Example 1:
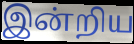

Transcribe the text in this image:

இன்றிய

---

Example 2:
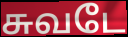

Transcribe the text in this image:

சுவடே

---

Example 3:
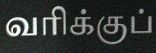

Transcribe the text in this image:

வரிக்குப்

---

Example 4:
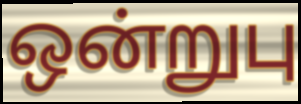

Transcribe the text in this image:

ஒன்றுபு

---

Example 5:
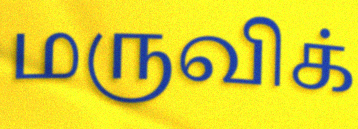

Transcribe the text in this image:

மருவிக்